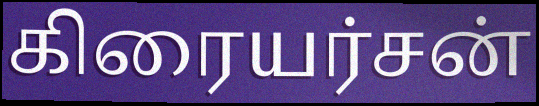
கிரையர்சன்